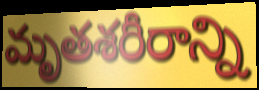
మృతశరీరాన్ని